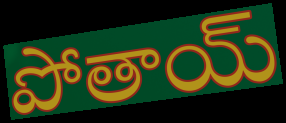
పోతాయ్